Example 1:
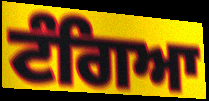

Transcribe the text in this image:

ਟੰਗਿਆ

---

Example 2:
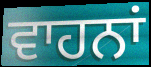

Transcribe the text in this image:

ਵਾਹਨਾਂ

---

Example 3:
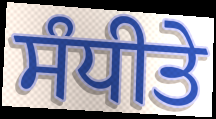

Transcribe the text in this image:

ਸੰਧੀਤੇ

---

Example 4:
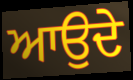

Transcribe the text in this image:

ਆਉਦੇ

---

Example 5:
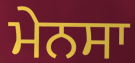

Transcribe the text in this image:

ਮੇਨਸਾ